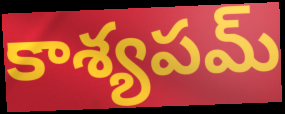
కాశ్యపమ్